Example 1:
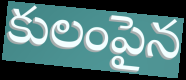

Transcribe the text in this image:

కులంపైన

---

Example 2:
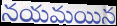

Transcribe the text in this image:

నయమయిన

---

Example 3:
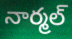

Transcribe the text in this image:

నార్మల్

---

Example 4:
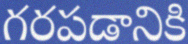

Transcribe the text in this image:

గరపడానికి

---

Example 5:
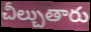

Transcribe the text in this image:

చీల్చుతారు